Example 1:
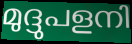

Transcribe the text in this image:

മുദ്ദുപളനി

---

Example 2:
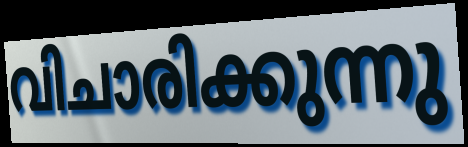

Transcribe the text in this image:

വിചാരിക്കുന്നു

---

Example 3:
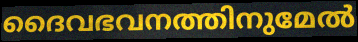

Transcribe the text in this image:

ദൈവഭവനത്തിനുമേൽ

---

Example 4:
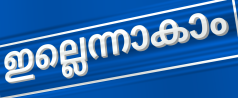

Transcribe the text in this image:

ഇല്ലെന്നാകാം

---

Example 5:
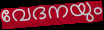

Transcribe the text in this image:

വേദനയും